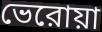
ভেরোয়া